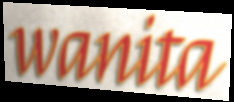
wanita